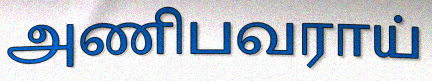
அணிபவராய்